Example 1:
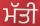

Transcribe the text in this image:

ਮੱਤੀ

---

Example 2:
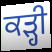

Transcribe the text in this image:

ਕੜ੍ਹੀ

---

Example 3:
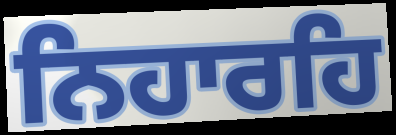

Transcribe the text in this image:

ਨਿਹਾਰਹਿ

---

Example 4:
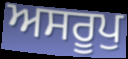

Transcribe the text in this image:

ਅਸਰੂਪੁ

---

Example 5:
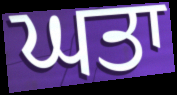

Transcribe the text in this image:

ਘਤਾ